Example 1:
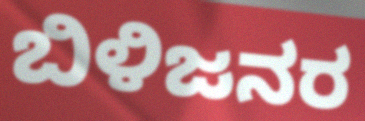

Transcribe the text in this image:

ಬಿಳಿಜನರ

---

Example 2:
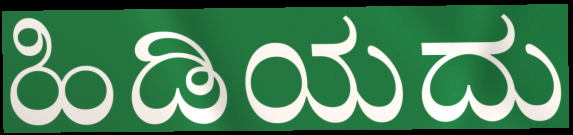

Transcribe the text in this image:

ಹಿಡಿಯದು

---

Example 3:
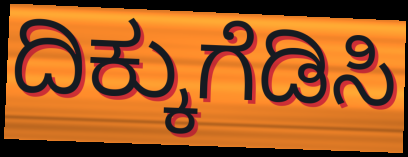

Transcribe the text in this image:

ದಿಕ್ಕುಗೆಡಿಸಿ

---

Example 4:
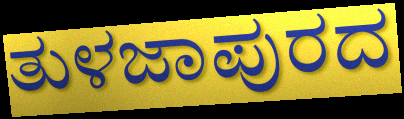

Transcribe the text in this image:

ತುಳಜಾಪುರದ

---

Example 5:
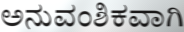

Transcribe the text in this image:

ಅನುವಂಶಿಕವಾಗಿ